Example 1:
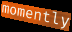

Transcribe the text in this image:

momently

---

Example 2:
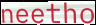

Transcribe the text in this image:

neetho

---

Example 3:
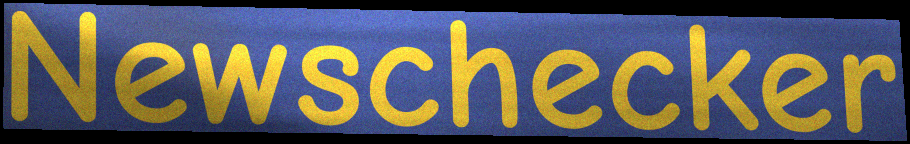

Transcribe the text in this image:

Newschecker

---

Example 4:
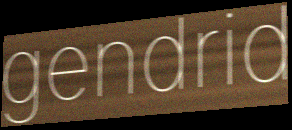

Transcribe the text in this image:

gendrid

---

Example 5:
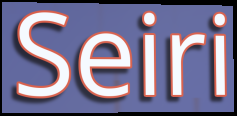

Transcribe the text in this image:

Seiri